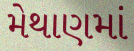
મેથાણમાં